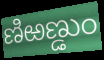
ణిఱణ్డుం